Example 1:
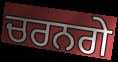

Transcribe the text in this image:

ਚਰਨਗੇ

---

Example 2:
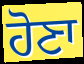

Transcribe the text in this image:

ਹੋਣਾ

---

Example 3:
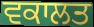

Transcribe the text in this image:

ਵਕਾਲਤ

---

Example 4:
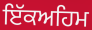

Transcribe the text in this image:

ਇੱਕਅਹਿਮ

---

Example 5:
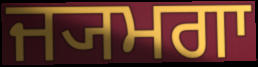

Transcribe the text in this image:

ਜ੍ਯਮਗਾ